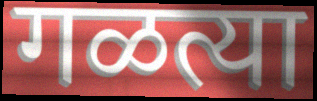
गळत्या